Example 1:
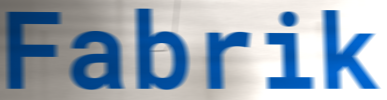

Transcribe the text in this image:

Fabrik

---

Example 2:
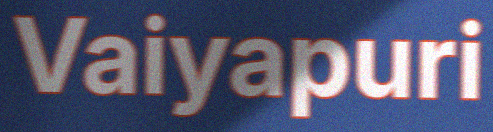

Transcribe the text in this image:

Vaiyapuri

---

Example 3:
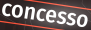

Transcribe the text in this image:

concesso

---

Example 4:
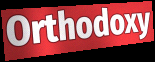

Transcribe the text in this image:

Orthodoxy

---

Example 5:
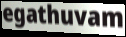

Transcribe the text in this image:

egathuvam